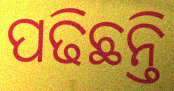
ପଢିଛନ୍ତି